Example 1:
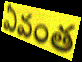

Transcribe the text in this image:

ఏవంత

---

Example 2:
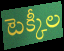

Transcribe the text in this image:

టెక్కీల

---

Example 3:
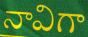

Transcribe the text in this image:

నావిగా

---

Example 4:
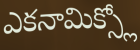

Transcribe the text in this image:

ఎకనామిక్స్లో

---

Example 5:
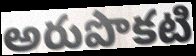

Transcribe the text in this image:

అరుపొకటి